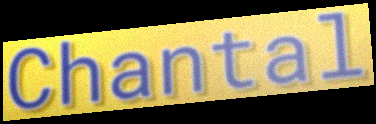
Chantal